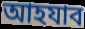
আহযাব